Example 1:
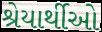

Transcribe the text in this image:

શ્રેયાર્થીઓ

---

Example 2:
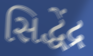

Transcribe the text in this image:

સિદ્ધેંદ્ર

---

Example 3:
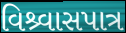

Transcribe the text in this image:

વિશ્ર્વાસપાત્ર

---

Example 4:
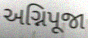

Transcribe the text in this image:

અગ્નિપૂજા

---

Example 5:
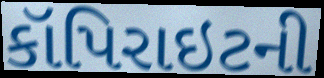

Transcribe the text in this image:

કૉપિરાઇટની